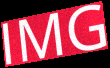
IMG